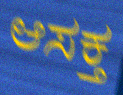
ಆಸಕ್ತ